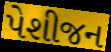
પેશીજન